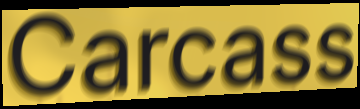
Carcass